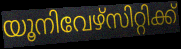
യൂനിവേഴ്സിറ്റിക്ക്